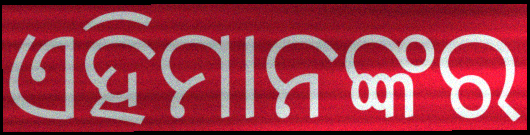
ଏହିମାନଙ୍କର